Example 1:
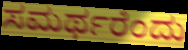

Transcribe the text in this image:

ಸಮರ್ಥರೆಂದು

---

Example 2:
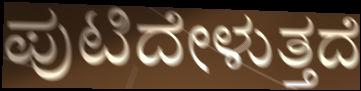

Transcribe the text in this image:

ಪುಟಿದೇಳುತ್ತದೆ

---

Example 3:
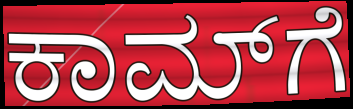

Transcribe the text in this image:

ಕಾಮ್‌ಗೆ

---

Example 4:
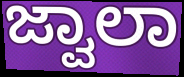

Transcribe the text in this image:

ಜ್ವಾಲಾ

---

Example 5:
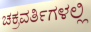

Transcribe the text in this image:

ಚಕ್ರವರ್ತಿಗಳಲ್ಲಿ